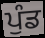
ਪੁੰਡ